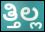
ತ್ತಿಲ್ಲ